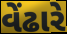
વેંઢારે